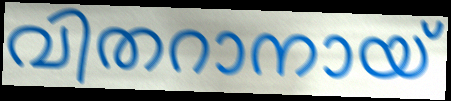
വിതറാനായ്